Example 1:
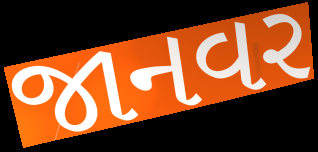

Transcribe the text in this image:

જાનવર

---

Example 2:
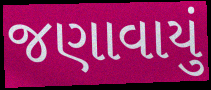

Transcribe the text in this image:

જણાવાયું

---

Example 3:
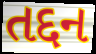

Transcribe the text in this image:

તદ્દન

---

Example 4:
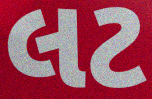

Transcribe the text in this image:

લટ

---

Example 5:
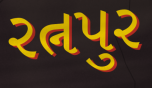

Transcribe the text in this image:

રત્નપુર